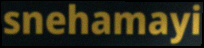
snehamayi